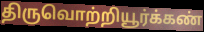
திருவொற்றியூர்க்கண்